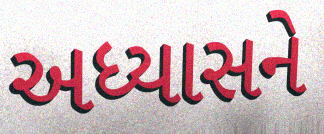
અધ્યાસને